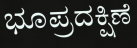
ಭೂಪ್ರದಕ್ಷಿಣೆ